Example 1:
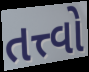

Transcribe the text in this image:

તત્ત્વો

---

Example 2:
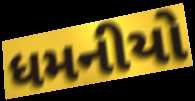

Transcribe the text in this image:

ધમનીયો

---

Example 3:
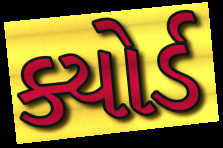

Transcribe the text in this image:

ક્યોર્ડ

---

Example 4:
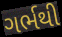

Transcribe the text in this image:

ગર્ભથી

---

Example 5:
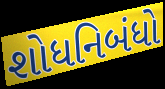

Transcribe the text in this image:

શોધનિબંધો